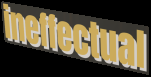
ineffectual